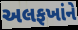
અલફખાંને